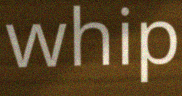
whip